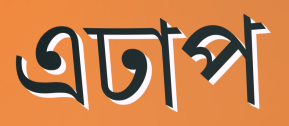
এঢাপ